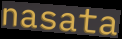
nasata